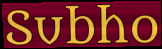
Subho